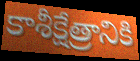
కాశీక్షేత్రానికి